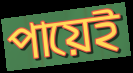
পায়েই